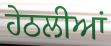
ਹੇਠਲੀਆਂ